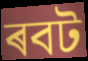
ৰবট